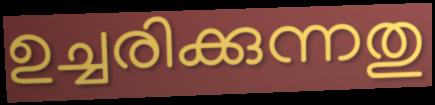
ഉച്ചരിക്കുന്നതു